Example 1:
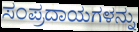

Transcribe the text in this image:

ಸಂಪ್ರದಾಯಗಳನ್ನು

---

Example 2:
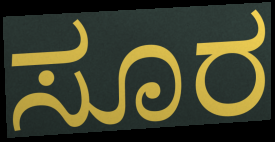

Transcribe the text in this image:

ಸೂರ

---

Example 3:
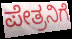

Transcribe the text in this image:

ಪೇತ್ರನಿಗೆ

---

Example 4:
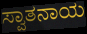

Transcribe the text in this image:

ಸ್ವಾತನಾಯ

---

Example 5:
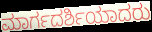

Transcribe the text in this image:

ಮಾರ್ಗದರ್ಶಿಯಾದರು